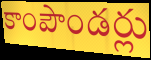
కాంపౌండర్లు